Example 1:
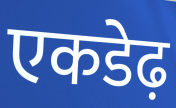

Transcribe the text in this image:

एकडेढ़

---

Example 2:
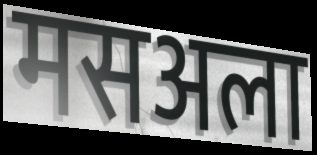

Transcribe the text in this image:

मसअला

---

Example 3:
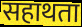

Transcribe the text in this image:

सहाथता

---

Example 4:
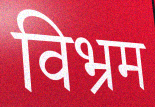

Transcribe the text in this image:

विभ्रम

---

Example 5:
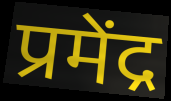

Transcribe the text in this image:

प्रमेंद्र